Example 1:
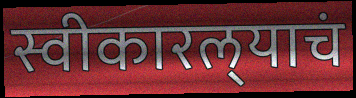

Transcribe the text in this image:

स्वीकारल्याचं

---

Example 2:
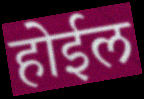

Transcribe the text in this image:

होईल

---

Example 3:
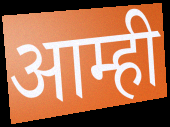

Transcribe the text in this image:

आम्ही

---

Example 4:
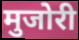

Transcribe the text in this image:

मुजोरी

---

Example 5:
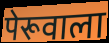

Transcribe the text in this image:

पेरूवाला